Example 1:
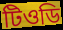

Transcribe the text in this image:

টিওডি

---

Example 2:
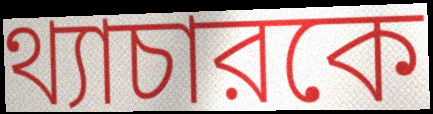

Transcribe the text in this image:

থ্যাচারকে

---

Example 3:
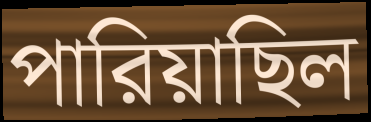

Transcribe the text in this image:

পারিয়াছিল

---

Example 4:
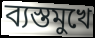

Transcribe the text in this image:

ব্যস্তমুখে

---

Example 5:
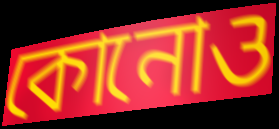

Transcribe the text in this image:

কোনোও